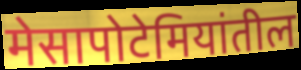
मेसापोटेमियांतील